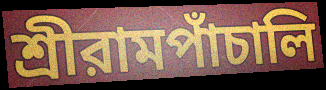
শ্রীরামপাঁচালি